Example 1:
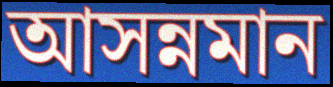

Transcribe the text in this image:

আসন্নমান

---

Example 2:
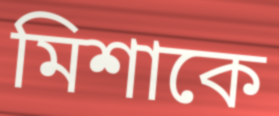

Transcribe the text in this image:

মিশাকে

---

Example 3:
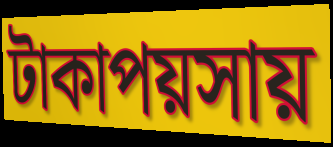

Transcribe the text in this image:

টাকাপয়সায়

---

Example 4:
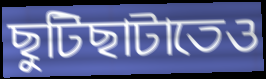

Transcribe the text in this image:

ছুটিছাটাতেও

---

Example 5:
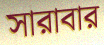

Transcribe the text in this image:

সারাবার